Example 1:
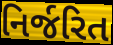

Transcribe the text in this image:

નિર્જરિત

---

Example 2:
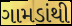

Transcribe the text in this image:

ગામડાંથી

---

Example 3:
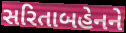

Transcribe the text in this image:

સરિતાબહેનને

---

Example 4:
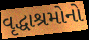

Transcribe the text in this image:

વૃદ્ધાશ્રમોનો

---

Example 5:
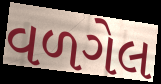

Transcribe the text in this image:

વળગેલ